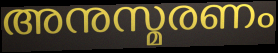
അനുസ്മരണം